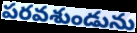
పరవశుండును